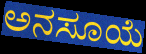
ಅನಸೂಯೆ